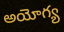
అయోగ్య